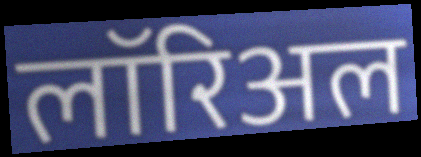
लॉरिअल